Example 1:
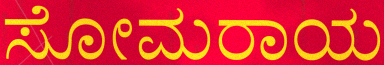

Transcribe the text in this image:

ಸೋಮರಾಯ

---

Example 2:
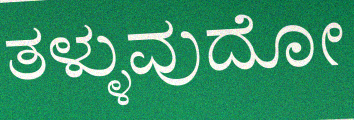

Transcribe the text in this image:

ತಳ್ಳುವುದೋ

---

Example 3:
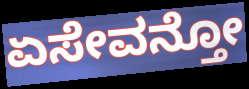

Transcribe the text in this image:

ಏಸೇವನ್ತೋ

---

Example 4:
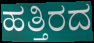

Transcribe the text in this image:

ಹತ್ತಿರದ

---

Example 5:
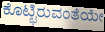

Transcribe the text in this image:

ಕೊಟ್ಟಿರುವಂತೆಯೇ